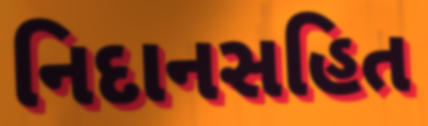
નિદાનસહિત